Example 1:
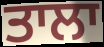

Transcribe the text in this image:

ਤਾਲਾ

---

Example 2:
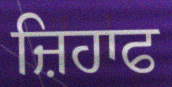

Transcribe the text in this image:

ਜ਼ਿਹਾਫ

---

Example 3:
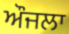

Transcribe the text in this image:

ਔਜਲਾ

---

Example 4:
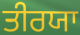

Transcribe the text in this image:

ਤੀਰਯਾ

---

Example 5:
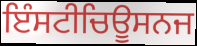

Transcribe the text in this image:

ਇੰਸਟੀਚਿਊਸਨਜ